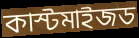
কাস্টমাইজড